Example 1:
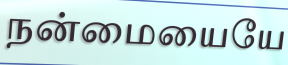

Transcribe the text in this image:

நன்மையையே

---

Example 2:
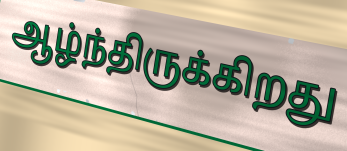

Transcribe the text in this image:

ஆழ்ந்திருக்கிறது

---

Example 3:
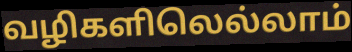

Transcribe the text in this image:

வழிகளிலெல்லாம்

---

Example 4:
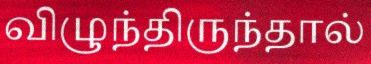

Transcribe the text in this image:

விழுந்திருந்தால்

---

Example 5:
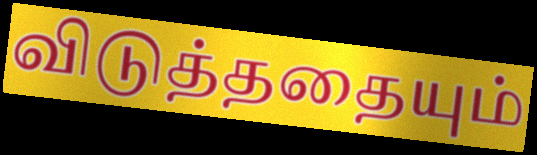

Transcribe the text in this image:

விடுத்ததையும்